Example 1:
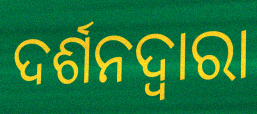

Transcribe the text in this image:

ଦର୍ଶନଦ୍ୱାରା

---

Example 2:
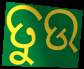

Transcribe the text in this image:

ତୁଉ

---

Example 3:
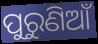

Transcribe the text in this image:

ପୁରୁଣିଆଁ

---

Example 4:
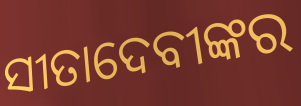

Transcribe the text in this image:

ସୀତାଦେବୀଙ୍କର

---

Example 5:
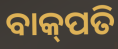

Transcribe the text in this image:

ବାକ୍‌ପତି